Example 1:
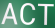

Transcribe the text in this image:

ACT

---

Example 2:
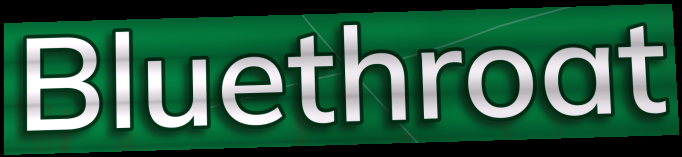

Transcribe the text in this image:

Bluethroat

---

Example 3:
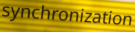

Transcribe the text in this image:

synchronization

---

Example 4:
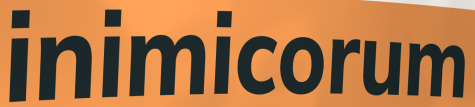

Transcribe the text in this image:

inimicorum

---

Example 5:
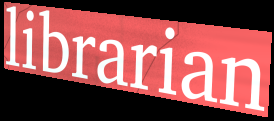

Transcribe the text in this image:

librarian